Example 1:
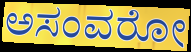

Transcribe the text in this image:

ಅಸಂವರೋ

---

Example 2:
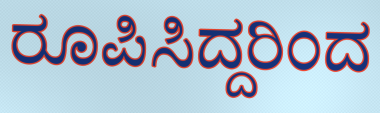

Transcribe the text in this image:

ರೂಪಿಸಿದ್ದರಿಂದ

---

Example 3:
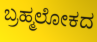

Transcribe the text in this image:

ಬ್ರಹ್ಮಲೋಕದ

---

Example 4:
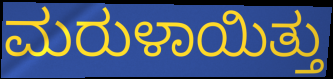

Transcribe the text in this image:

ಮರುಳಾಯಿತ್ತು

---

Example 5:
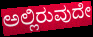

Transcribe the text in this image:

ಅಲ್ಲಿರುವುದೇ